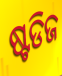
ଷ୍ଟଡିଜ